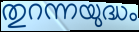
തുറന്നയുദ്ധം